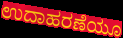
ಉದಾಹರಣೆಯೂ